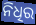
ନିଧିର